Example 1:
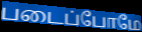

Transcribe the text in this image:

படைப்போமே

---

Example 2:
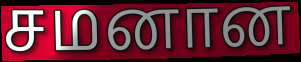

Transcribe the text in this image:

சமனான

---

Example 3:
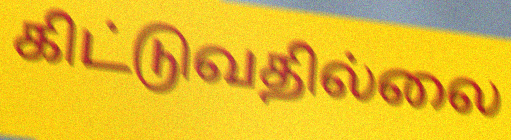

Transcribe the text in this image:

கிட்டுவதில்லை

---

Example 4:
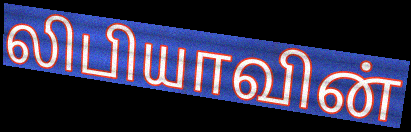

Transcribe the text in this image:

லிபியாவின்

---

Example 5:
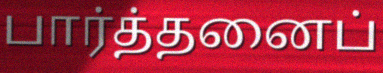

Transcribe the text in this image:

பார்த்தனைப்